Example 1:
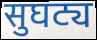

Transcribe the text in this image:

सुघट्य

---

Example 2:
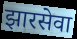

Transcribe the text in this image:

झारसेवा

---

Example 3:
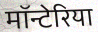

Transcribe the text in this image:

मॉन्टेरिया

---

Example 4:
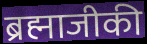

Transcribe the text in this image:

ब्रह्माजीकी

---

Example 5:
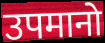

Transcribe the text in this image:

उपमानो